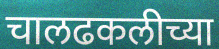
चालढकलीच्या